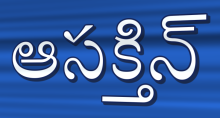
ఆసక్తిన్